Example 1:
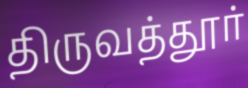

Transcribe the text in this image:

திருவத்தூர்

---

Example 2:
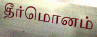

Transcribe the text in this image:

தீர்மொனம்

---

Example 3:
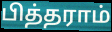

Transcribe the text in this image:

பித்தராம்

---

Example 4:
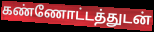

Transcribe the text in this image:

கண்ணோட்டத்துடன்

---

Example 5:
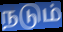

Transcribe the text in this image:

நடும்